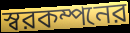
স্বরকম্পনের